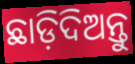
ଛାଡ଼ିଦିଅନ୍ତୁ